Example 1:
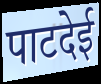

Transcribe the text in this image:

पाटदेई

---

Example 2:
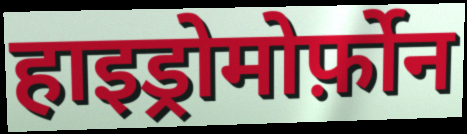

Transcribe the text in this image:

हाइड्रोमोर्फ़ोन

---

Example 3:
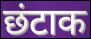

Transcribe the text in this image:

छंटाक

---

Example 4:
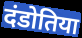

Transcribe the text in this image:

दंडोतिया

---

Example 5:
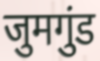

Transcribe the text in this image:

जुमगुंड